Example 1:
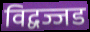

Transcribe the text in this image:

विद्वज्जड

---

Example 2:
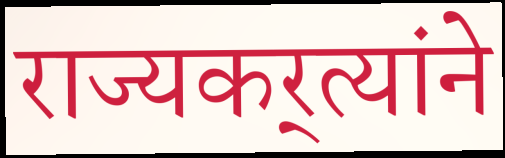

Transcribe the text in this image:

राज्यकर्त्यांने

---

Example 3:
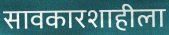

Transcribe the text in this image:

सावकारशाहीला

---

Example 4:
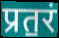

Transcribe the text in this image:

प्रत॒रं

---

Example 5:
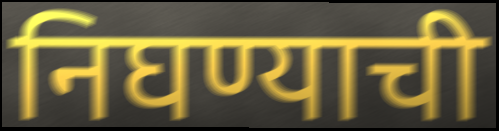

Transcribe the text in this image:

निघण्याची